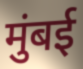
मुंबई